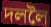
দললৈ